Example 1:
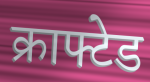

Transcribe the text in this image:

क्राफ्टेड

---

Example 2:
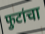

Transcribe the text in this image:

फुटांचा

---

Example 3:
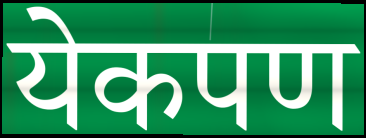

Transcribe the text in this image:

येकपण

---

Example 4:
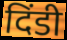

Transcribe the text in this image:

दिंडी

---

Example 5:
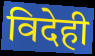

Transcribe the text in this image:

विदेही